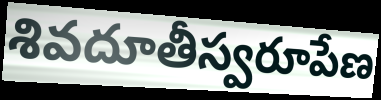
శివదూతీస్వరూపేణ